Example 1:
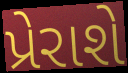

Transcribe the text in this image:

પ્રેરાશે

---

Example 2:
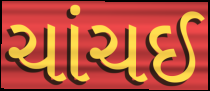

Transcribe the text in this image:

ચાંચઈ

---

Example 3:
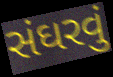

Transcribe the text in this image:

સંઘરવું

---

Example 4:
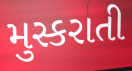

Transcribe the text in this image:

મુસ્કરાતી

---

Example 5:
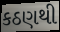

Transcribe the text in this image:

કઠણથી